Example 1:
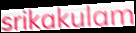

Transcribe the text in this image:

srikakulam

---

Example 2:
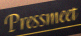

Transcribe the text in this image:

Pressmeet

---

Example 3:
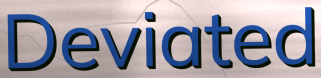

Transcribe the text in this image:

Deviated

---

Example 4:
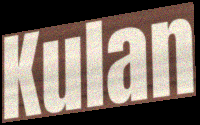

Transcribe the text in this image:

Kulan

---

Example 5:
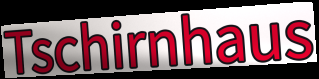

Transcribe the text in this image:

Tschirnhaus